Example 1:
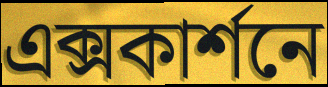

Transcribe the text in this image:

এক্সকার্শনে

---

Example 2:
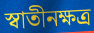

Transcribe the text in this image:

স্বাতীনক্ষত্র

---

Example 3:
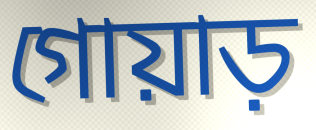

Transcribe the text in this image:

গোয়াড়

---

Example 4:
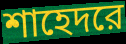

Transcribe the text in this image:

শাহেদরে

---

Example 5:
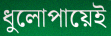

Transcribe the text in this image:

ধুলোপায়েই